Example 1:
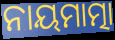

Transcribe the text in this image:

ନାୟମାତ୍ମା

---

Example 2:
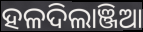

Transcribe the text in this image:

ହଳଦିଲାଞ୍ଜିଆ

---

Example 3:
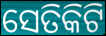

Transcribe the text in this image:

ସେତିକିଟି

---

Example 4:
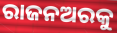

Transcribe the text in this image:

ରାଜନଅରକୁ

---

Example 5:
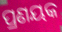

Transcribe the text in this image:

ପ୍ରଣୟକ